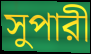
সুপারী